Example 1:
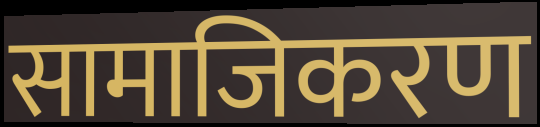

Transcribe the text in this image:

सामाजिकरण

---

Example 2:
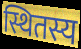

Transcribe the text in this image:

स्थितस्य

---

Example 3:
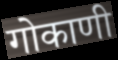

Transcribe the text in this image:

गोकाणी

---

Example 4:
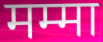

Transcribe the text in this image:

मम्मा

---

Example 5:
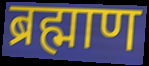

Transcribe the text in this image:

ब्रह्माण